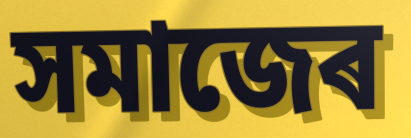
সমাজেৰ